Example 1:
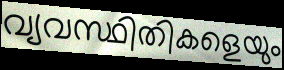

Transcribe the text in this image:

വ്യവസ്ഥിതികളെയും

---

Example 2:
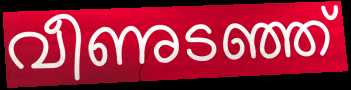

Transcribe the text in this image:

വീണുടഞ്ഞ്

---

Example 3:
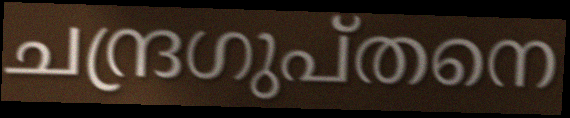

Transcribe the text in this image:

ചന്ദ്രഗുപ്തനെ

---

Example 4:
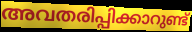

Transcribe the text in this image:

അവതരിപ്പിക്കാറുണ്ട്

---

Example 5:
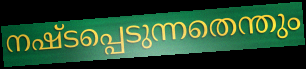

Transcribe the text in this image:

നഷ്ടപ്പെടുന്നതെന്തും